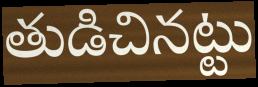
తుడిచినట్టు